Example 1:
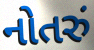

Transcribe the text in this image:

નોતરું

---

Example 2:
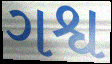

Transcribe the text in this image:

ગશ્વ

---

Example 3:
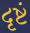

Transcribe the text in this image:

દૃષ્ટં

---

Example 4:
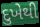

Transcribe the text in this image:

દુખેથી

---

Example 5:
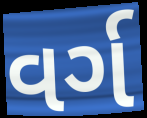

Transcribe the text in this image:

વર્ગ